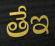
తేఇ